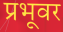
प्रभूवर